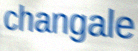
changale